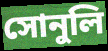
সোনুলি